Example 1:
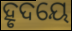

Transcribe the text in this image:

ହୃଦୟେ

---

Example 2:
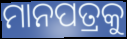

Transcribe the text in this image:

ମାନପତ୍ରକୁ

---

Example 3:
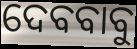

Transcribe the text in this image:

ଦେବବାବୁ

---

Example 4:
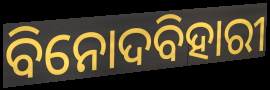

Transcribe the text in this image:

ବିନୋଦବିହାରୀ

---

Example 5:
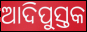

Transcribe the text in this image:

ଆଦିପୁସ୍ତକ